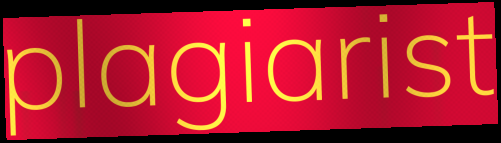
plagiarist